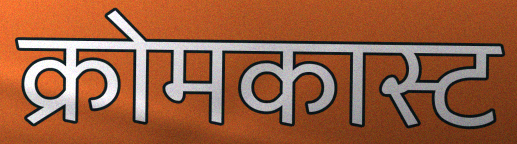
क्रोमकास्ट